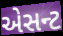
એસન્ટ